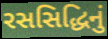
રસસિદ્ધિનું